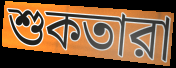
শুকতারা